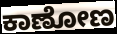
ಕಾಣೋಣ